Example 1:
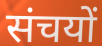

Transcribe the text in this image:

संचयों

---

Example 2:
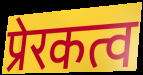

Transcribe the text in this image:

प्रेरकत्व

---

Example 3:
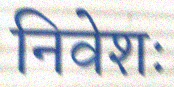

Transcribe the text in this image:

निवेशः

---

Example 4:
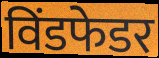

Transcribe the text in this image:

विंडफेडर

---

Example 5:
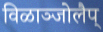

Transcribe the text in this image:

विळाञ्जोलैप्